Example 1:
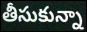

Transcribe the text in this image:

తీసుకున్నా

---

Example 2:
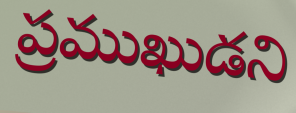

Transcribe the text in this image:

ప్రముఖుడని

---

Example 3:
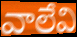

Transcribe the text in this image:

వాలేవి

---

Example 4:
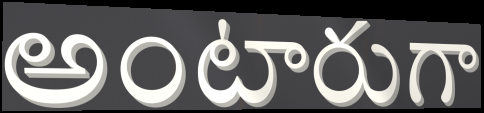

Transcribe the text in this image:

అంటారుగా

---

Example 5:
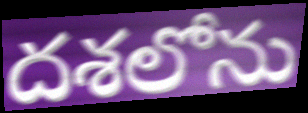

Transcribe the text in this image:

దశలోను